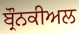
ਬ੍ਰੌਨਕੀਅਲ